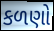
કળણો